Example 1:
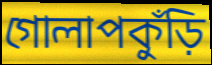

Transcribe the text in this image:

গোলাপকুঁড়ি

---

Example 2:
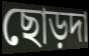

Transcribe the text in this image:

ছোড়দা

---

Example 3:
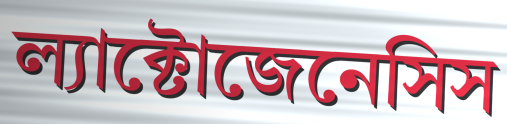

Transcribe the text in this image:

ল্যাক্টোজেনেসিস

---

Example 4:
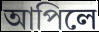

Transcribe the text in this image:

আপিলে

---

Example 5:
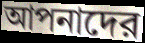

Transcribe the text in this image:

আপনাদের